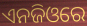
ଏନଜିଓରେ